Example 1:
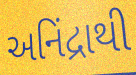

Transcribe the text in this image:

અનિંદ્રાથી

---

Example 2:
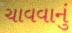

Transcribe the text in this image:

ચાવવાનું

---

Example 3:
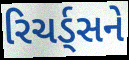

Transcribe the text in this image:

રિચર્ડ્સને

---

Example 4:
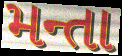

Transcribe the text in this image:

મન્તા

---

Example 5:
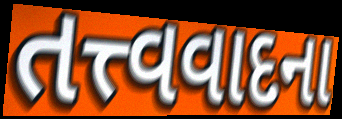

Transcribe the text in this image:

તત્ત્વવાદના